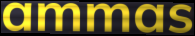
ammas